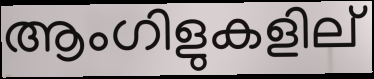
ആംഗിളുകളില്